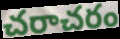
చరాచరం